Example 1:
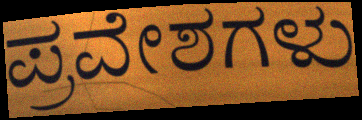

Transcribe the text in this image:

ಪ್ರವೇಶಗಳು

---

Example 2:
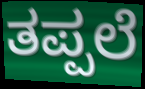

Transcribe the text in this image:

ತಪ್ಪಲೆ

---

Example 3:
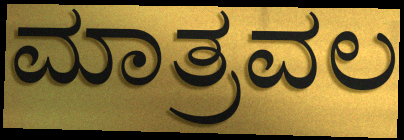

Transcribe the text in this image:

ಮಾತ್ರವಲ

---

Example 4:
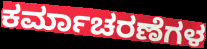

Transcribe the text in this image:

ಕರ್ಮಾಚರಣೆಗಳ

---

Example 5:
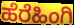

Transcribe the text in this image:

ಹೆರೆಹಿಂಗಿ